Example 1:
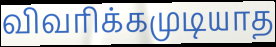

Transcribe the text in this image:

விவரிக்கமுடியாத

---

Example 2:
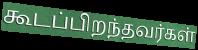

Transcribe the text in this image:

கூடப்பிறந்தவர்கள்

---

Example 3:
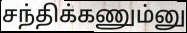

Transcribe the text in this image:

சந்திக்கணும்னு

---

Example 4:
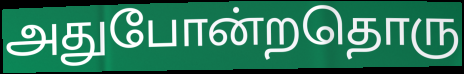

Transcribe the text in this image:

அதுபோன்றதொரு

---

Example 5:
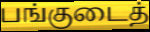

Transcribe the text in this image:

பங்குடைத்